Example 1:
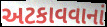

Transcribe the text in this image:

અટકાવવાનાં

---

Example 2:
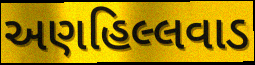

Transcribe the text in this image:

અણહિલ્લવાડ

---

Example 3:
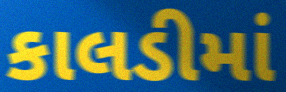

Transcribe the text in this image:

કાલડીમાં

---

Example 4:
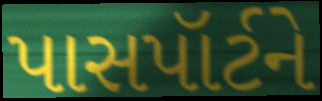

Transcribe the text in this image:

પાસપૉર્ટને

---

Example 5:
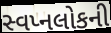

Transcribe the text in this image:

સ્વપ્નલોકની